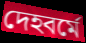
দেহবর্মে